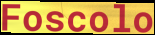
Foscolo